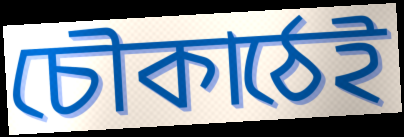
চৌকাঠেই